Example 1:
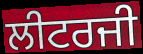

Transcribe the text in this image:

ਲੀਟਰਜੀ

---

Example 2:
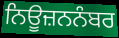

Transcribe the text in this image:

ਨਿਊਜ਼ਨਨੰਬਰ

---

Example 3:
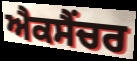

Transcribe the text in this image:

ਐਕਸੈਂਚਰ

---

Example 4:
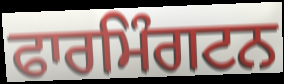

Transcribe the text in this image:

ਫਾਰਮਿੰਗਟਨ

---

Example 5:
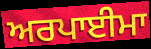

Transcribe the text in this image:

ਅਰਪਾਈਮਾ